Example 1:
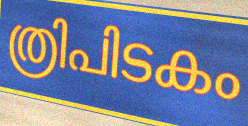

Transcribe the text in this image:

ത്രിപിടകം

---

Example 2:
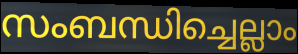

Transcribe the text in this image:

സംബന്ധിച്ചെല്ലാം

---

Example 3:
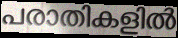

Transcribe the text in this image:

പരാതികളിൽ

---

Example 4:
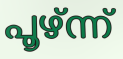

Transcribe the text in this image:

പൂഴ്ന്ന്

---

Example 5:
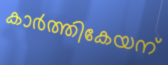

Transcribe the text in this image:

കാർത്തികേയന്